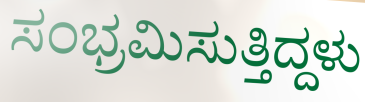
ಸಂಭ್ರಮಿಸುತ್ತಿದ್ದಳು